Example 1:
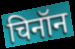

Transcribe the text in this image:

चिनॉन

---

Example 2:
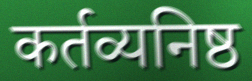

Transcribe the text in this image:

कर्तव्यनिष्ठ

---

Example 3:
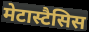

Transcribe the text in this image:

मेटास्टैसिस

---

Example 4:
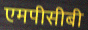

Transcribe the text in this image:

एमपीसीबी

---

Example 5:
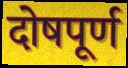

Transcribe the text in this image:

दोषपूर्ण